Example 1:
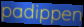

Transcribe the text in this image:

padippen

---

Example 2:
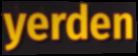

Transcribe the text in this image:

yerden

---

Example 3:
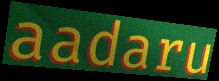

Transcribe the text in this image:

aadaru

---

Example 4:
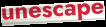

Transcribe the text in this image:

unescape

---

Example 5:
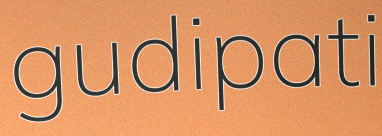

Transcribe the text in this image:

gudipati